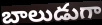
బాలుడుగా